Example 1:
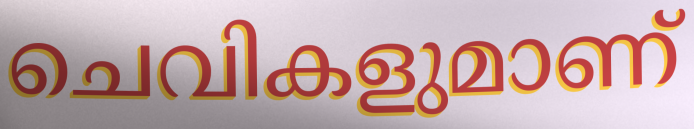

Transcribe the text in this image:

ചെവികളുമാണ്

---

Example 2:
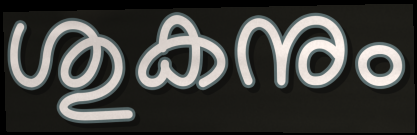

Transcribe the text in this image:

ശുകനും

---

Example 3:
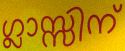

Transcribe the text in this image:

ഗ്ലാസ്സിന്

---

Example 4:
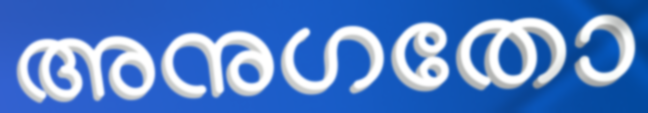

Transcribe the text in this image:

അനുഗതോ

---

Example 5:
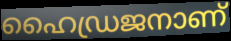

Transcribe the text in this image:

ഹൈഡ്രജനാണ്